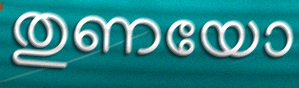
തുണയോ